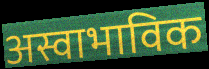
अस्वाभाविक